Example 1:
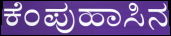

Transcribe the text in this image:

ಕೆಂಪುಹಾಸಿನ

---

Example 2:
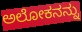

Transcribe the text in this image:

ಅಲೋಕನನ್ನು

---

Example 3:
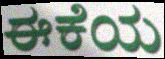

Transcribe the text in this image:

ಈಕೆಯ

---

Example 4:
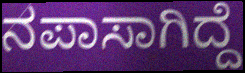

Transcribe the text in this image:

ನಪಾಸಾಗಿದ್ದೆ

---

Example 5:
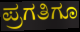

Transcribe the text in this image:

ಪ್ರಗತಿಗೂ